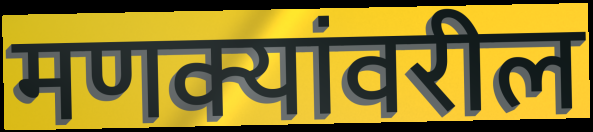
मणक्यांवरील